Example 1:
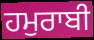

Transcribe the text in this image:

ਹਮੁਰਾਬੀ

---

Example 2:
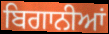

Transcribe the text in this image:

ਬਿਗਾਨੀਆਂ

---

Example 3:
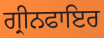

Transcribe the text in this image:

ਗ੍ਰੀਨਫਾਇਰ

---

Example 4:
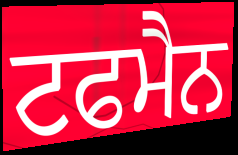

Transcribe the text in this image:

ਟਫਮੈਨ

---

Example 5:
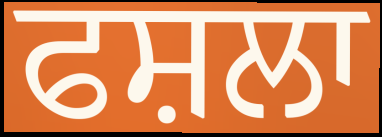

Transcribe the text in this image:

ਫਸ਼ਲਾ